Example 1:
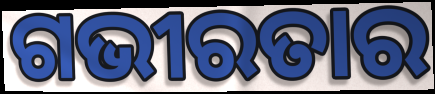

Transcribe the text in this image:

ଗଭୀରତାର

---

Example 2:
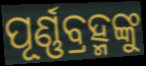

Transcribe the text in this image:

ପୂର୍ଣ୍ଣବ୍ରହ୍ମଙ୍କୁ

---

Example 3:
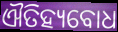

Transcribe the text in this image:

ଐତିହ୍ୟବୋଧ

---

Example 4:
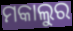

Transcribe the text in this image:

ମକାଲୁର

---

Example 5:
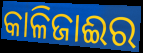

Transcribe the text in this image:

କାଳିଜାଈର